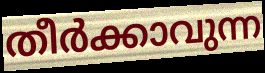
തീർക്കാവുന്ന